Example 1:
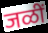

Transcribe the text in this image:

जळीं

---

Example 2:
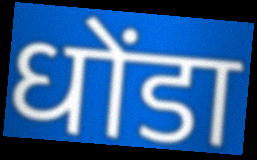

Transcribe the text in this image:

धोंडा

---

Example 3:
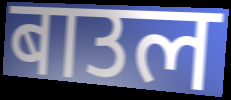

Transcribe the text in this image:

बाउल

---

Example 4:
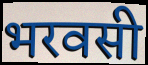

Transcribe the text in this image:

भरवसी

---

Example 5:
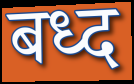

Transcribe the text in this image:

बध्द